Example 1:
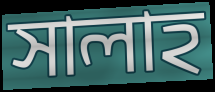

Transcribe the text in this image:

সালাহ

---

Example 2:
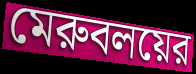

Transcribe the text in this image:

মেরুবলয়ের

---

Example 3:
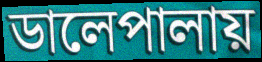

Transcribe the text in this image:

ডালেপালায়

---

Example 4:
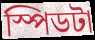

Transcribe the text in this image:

স্পিডটা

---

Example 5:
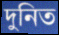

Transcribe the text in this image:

দুনিত